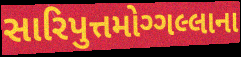
સારિપુત્તમોગ્ગલ્લાના